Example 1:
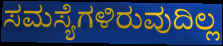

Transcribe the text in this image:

ಸಮಸ್ಯೆಗಳಿರುವುದಿಲ್ಲ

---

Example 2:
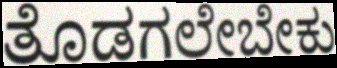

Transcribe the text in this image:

ತೊಡಗಲೇಬೇಕು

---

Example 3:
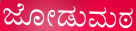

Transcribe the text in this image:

ಜೋಡುಮಠ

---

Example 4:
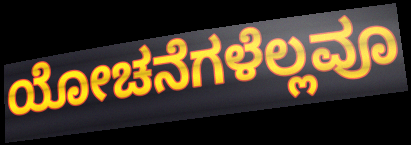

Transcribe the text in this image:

ಯೋಚನೆಗಳೆಲ್ಲವೂ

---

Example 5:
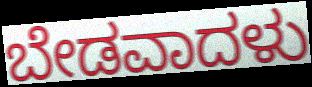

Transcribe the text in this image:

ಬೇಡವಾದಳು